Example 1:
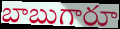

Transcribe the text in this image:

బాబుగారూ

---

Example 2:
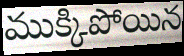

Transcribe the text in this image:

ముక్కిపోయిన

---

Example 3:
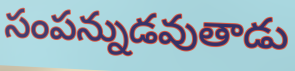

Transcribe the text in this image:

సంపన్నుడవుతాడు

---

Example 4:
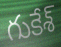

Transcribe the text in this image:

గుకేశ్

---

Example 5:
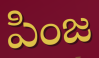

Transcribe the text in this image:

పింజ